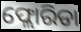
ଫ୍ଲୋରିଡା